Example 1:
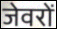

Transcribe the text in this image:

जेवरों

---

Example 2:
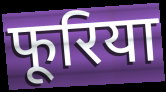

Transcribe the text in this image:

फूरिया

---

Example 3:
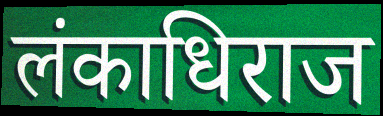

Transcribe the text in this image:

लंकाधिराज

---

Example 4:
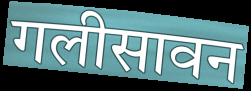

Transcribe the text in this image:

गलीसावन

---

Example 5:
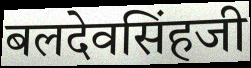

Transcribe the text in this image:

बलदेवसिंहजी